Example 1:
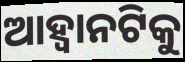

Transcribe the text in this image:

ଆହ୍ଵାନଟିକୁ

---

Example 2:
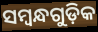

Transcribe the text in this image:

ସମ୍ବନ୍ଧଗୁଡ଼ିକ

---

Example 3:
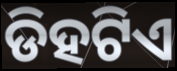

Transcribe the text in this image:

ଡିହଟିଏ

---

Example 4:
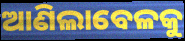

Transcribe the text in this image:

ଆଣିଲାବେଳକୁ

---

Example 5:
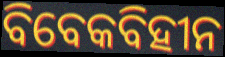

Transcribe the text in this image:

ବିବେକବିହୀନ